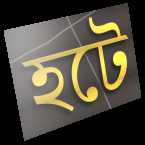
হটে